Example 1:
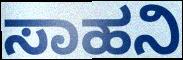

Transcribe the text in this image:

ಸಾಹನಿ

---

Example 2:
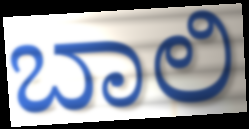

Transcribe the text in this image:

ಬಾಲಿ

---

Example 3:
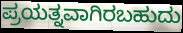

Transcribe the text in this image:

ಪ್ರಯತ್ನವಾಗಿರಬಹುದು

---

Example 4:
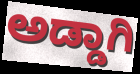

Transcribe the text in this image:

ಅಡ್ಡಾಗಿ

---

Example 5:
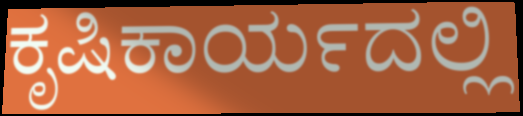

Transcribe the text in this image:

ಕೃಷಿಕಾರ್ಯದಲ್ಲಿ